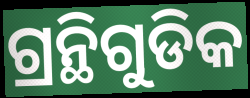
ଗ୍ରନ୍ଥିଗୁଡିକ